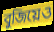
বুজিয়েও